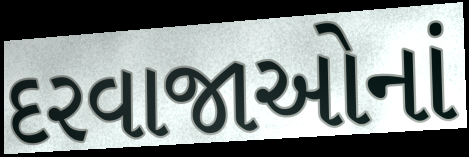
દરવાજાઓનાં